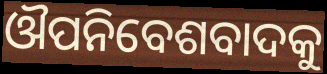
ଔପନିବେଶବାଦକୁ